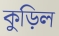
কুড়িল